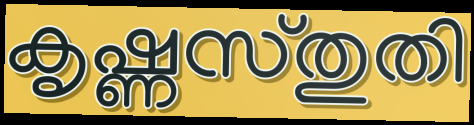
കൃഷ്ണസ്തുതി